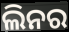
ଲିନର